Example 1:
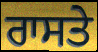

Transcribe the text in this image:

ਰਾਸਤੇ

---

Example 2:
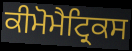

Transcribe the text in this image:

ਕੀਮੋਮੈਟ੍ਰਿਕਸ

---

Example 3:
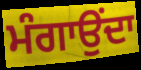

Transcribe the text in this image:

ਮੰਗਾਉਂਦਾ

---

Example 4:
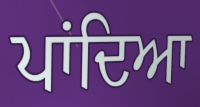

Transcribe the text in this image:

ਪਾਂਦਿਆ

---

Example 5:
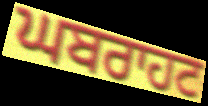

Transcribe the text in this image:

ਘਬਰਾਹਟ